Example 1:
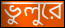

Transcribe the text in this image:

ভুলুরে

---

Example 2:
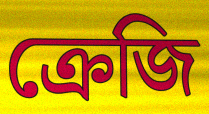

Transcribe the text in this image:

ক্রেজি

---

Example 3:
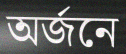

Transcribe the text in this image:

অর্জনে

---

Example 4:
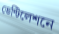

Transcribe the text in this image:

ভেন্টিলেশনে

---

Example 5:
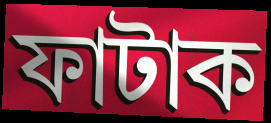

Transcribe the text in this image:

ফাটাক